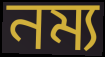
নম্য